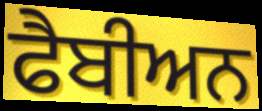
ਫੈਬੀਅਨ